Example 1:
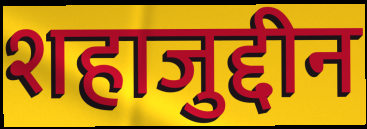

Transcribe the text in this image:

शहाजुद्दीन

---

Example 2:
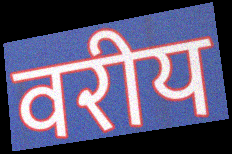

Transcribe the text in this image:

वरीय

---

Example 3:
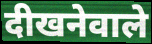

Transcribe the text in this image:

दीखनेवाले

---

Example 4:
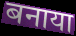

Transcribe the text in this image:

बनाया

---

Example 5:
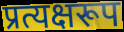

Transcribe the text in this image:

प्रत्यक्षरूप